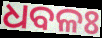
ଧବଳଃ